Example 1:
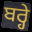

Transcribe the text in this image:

ਬਰ੍ਹੇ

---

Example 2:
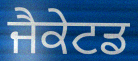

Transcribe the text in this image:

ਜੈਕੇਟਡ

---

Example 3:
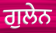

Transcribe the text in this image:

ਗੁਲੇਨ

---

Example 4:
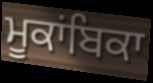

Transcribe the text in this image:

ਮੂਕਾਂਬਿਕਾ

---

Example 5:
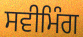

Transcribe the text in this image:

ਸਵੀਮਿੰਗ